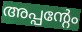
അപ്പന്റേം